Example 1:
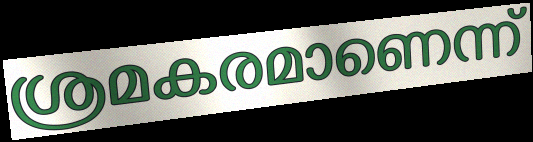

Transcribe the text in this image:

ശ്രമകരമാണെന്ന്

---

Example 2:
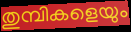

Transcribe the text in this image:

തുമ്പികളെയും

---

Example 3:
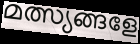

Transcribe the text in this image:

മത്സ്യങ്ങളേ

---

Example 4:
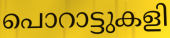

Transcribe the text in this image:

പൊറാട്ടുകളി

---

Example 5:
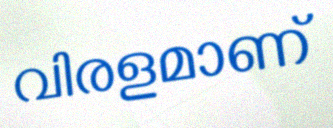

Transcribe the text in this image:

വിരളമാണ്